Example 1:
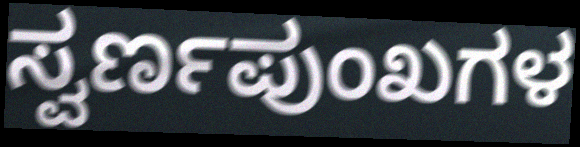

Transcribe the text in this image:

ಸ್ವರ್ಣಪುಂಖಗಳ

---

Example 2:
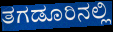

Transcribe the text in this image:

ತಗಡೂರಿನಲ್ಲಿ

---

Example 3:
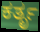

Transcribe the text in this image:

ಕರ್ತೃ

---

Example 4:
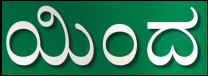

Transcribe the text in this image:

ಯಿಂದ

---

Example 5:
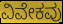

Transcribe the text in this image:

ವಿವೇಕವು